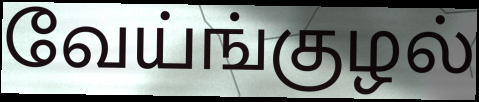
வேய்ங்குழல்